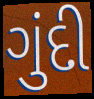
ગુંદી